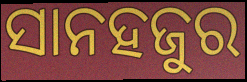
ସାନହଜୁର